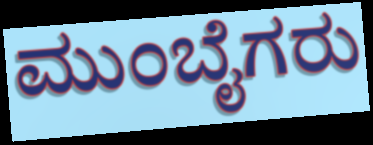
ಮುಂಬೈಗರು